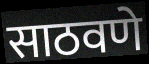
साठवणे